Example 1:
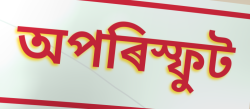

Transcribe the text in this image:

অপৰিস্ফুট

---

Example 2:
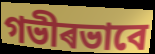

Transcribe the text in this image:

গভীৰভাবে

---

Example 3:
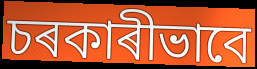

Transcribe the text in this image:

চৰকাৰীভাবে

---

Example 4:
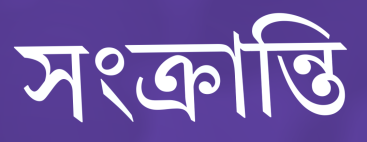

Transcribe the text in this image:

সংক্ৰান্তি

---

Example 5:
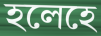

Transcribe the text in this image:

হলেহে